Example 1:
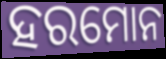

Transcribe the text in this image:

ହରମୋନ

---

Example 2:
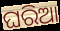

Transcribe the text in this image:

ଘରିଆ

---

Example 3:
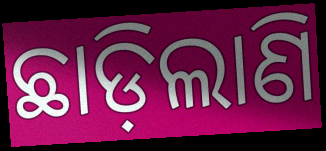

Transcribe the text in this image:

ଛାଡ଼ିଲାଣି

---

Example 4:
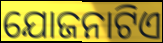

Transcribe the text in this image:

ଯୋଜନାଟିଏ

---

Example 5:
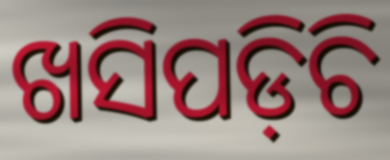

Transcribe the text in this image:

ଖସିପଡ଼ିଚି